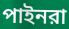
পাইনরা